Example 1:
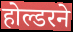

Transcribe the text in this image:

होल्डरने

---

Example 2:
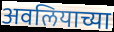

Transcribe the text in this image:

अवलियाच्या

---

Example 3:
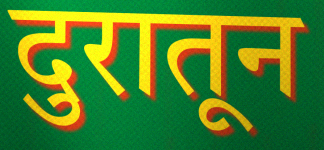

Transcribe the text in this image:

दुरातून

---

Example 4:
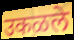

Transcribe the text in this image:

उकळले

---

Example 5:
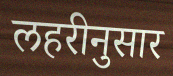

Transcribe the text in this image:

लहरीनुसार